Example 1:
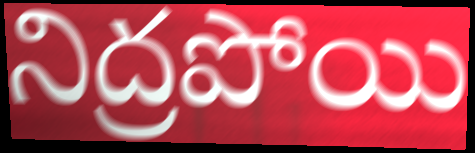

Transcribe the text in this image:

నిద్రపోయి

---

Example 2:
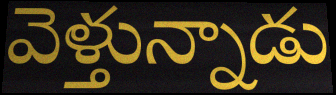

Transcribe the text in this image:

వెళ్తున్నాడు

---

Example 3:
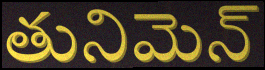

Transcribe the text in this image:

తునిమెన్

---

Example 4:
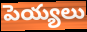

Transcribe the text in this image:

పెయ్యలు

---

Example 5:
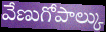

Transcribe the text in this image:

వేణుగోపాల్కు